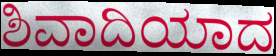
ಶಿವಾದಿಯಾದ